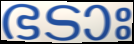
ഭടാഃ